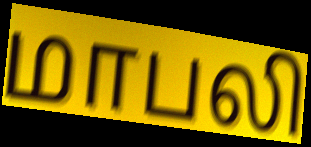
மாபலி